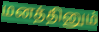
மனத்தினும்